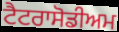
ਟੈਟਰਾਸੋਡੀਅਮ